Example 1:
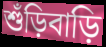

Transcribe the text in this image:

শুঁড়িবাড়ি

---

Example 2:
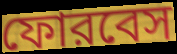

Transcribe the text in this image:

ফোরবেস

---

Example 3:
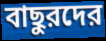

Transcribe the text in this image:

বাছুরদের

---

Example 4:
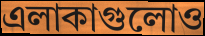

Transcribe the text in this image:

এলাকাগুলোও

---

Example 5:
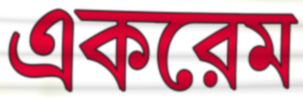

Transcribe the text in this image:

একরেম